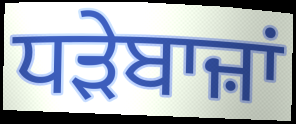
ਧੜੇਬਾਜ਼ਾਂ